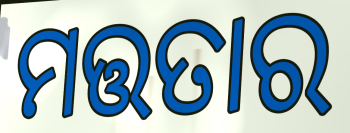
ମତ୍ତତାର